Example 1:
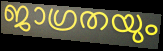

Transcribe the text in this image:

ജാഗ്രതയും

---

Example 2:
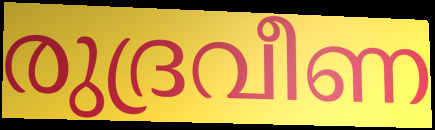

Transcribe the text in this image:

രുദ്രവീണ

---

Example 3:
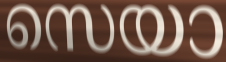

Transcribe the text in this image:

സെയാ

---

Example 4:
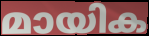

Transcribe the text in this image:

മായിക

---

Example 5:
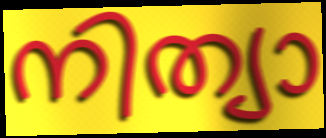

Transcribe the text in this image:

നിത്യാ